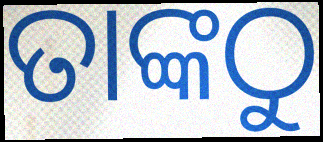
ତାଙ୍କଠୁ